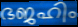
ഭജഹിം